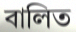
বালিত